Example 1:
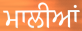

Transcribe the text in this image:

ਮਾਲੀਆਂ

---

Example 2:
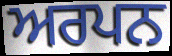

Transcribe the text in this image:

ਅਰਪਨ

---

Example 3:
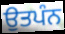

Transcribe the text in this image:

ਉਤਪੰਨ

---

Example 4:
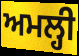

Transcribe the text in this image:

ਅਮਲ੍ਹੀ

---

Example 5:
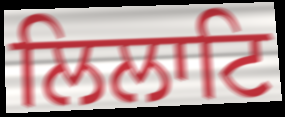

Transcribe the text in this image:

ਲਿਲਾਟਿ